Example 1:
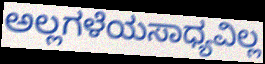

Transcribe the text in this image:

ಅಲ್ಲಗಳೆಯಸಾಧ್ಯವಿಲ್ಲ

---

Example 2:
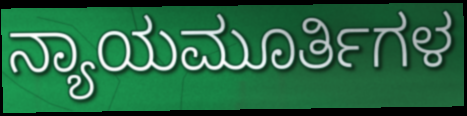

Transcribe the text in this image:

ನ್ಯಾಯಮೂರ್ತಿಗಳ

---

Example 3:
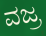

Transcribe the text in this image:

ವಜ್ರ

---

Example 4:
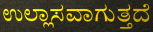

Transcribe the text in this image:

ಉಲ್ಲಾಸವಾಗುತ್ತದೆ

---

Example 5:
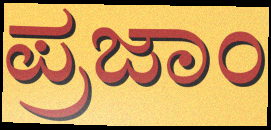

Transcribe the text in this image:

ಪ್ರಜಾಂ